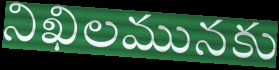
నిఖిలమునకు